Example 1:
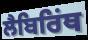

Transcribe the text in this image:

ਲੈਬਿਰਿਂਥ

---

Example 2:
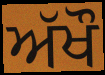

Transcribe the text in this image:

ਅੱਖੌ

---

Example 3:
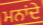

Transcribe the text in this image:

ਮਨਾਂਦੇ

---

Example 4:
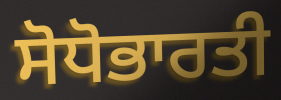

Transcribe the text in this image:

ਸੋਧੋਭਾਰਤੀ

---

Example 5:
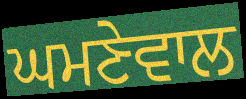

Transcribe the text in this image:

ਘਮਣੇਵਾਲ